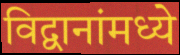
विद्वानांमध्ये